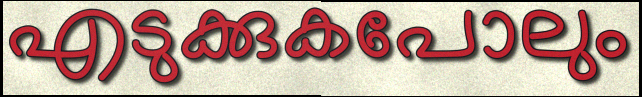
എടുക്കുകപോലും